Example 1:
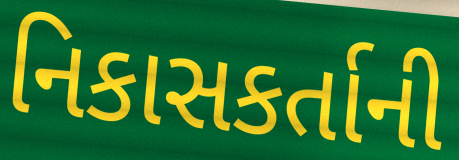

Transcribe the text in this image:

નિકાસકર્તાની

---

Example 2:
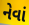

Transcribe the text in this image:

નેવાં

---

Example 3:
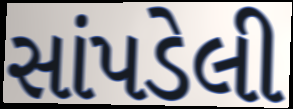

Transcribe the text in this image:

સાંપડેલી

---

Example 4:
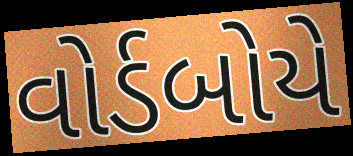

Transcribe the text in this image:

વોર્ડબોયે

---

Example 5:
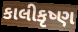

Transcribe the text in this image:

કાલીકૃષ્ણ